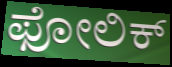
ಫೋಲಿಕ್